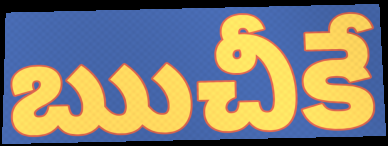
ఋచీకే